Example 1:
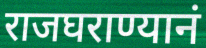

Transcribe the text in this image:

राजघराण्यानं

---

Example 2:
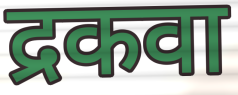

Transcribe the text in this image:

द्रकवा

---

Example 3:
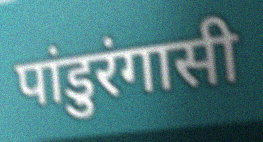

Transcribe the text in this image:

पांडुरंगासी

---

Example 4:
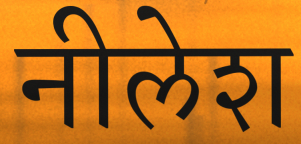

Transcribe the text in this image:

नीलेश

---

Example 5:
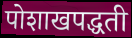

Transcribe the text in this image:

पोशाखपद्धती